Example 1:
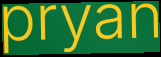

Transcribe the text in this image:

pryan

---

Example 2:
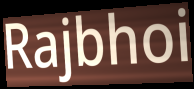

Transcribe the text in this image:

Rajbhoi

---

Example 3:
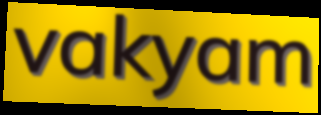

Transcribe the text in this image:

vakyam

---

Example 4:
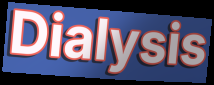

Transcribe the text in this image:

Dialysis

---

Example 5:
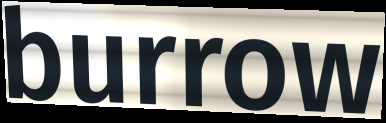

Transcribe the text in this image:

burrow